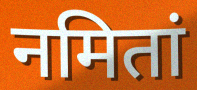
नमितां